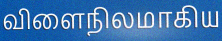
விளைநிலமாகிய